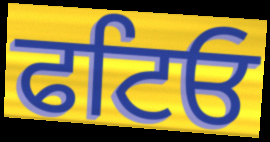
ਫਟਿਓ